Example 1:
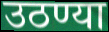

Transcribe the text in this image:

उठण्या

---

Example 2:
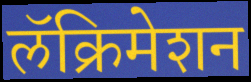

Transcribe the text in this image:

लॅक्रिमेशन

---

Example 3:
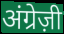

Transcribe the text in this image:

अंग्रेज़ी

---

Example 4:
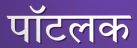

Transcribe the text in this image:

पॉटलक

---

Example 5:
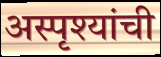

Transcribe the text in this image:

अस्पृश्यांची